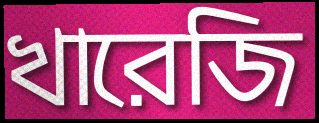
খারেজি